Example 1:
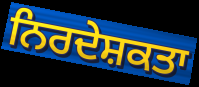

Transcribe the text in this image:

ਨਿਰਦੇਸ਼ਕਤਾ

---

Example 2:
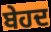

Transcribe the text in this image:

ਬੇਹਦ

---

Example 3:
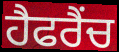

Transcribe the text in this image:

ਹੈਫਰੈਂਚ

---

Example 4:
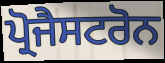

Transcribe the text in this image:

ਪ੍ਰੋਜੈਸਟਰੋਨ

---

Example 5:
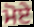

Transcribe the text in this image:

ਮੋਏ